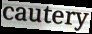
cautery